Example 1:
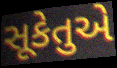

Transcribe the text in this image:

સૂકેતુએ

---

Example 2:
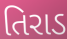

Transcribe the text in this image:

તિરાડ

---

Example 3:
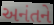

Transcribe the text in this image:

અનંતને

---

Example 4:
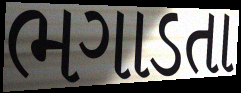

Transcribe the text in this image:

ભગાડતા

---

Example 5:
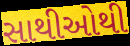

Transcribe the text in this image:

સાથીઓથી